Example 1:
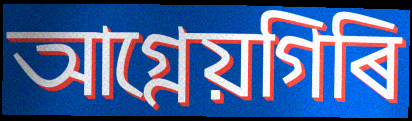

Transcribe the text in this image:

আগ্নেয়গিৰি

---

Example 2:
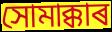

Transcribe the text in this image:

সোমাক্কাৰ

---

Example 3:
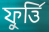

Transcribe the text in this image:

ফুৰ্ত্তি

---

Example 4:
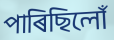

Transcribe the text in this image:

পাৰিছিলোঁ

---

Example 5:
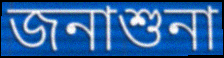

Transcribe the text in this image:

জনাশুনা